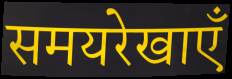
समयरेखाएँ